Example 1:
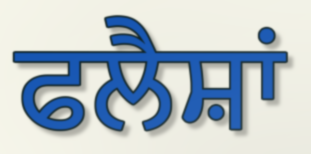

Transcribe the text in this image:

ਫਲੈਸ਼ਾਂ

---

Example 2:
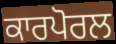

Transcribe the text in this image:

ਕਾਰਪੋਰਲ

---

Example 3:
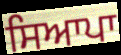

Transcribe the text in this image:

ਸਿਆਪਾ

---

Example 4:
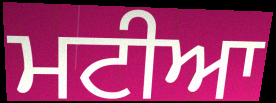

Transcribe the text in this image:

ਮਟੀਆ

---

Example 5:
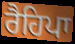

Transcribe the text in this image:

ਰੈਹਿਪਾ